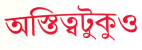
অস্তিত্বটুকুও